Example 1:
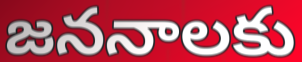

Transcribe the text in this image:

జననాలకు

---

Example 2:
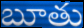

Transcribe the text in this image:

బూతు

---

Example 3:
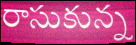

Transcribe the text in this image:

రాసుకున్న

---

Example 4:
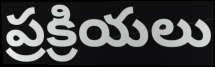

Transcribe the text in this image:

ప్రక్రియలు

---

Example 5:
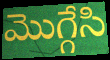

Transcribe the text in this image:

మొగ్గేసి